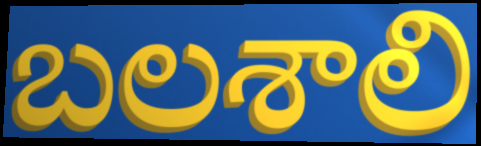
బలశాలి